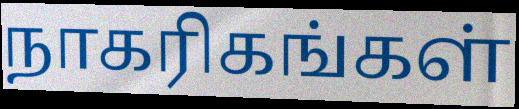
நாகரிகங்கள்